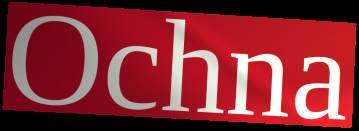
Ochna